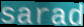
sarad